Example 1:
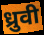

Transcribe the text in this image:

ध्रुवी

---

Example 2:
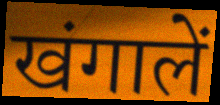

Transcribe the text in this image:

खंगालें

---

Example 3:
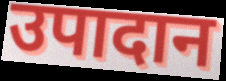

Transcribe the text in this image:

उपादान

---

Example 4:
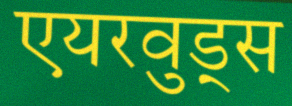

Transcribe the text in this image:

एयरवुड्स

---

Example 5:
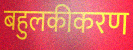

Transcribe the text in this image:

बहुलकीकरण